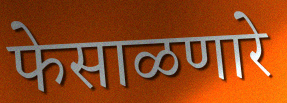
फेसाळणारे